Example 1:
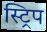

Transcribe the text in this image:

स्ट्रिप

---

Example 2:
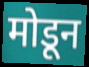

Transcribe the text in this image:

मोडून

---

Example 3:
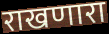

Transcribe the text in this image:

राखणारा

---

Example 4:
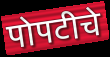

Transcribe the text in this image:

पोपटीचे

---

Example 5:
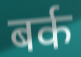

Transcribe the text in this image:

बर्क